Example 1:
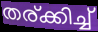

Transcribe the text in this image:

തര്ക്കിച്ച്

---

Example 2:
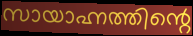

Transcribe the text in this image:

സായാഹ്നത്തിന്റെ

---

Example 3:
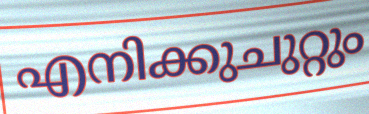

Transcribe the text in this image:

എനിക്കുചുറ്റും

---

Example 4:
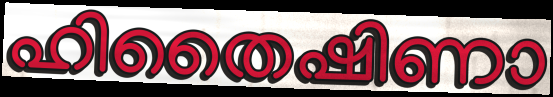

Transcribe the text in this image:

ഹിതൈഷിണാ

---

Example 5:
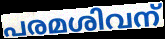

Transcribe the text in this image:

പരമശിവന്